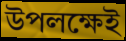
উপলক্ষেই